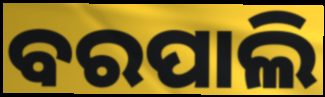
ବରପାଲି